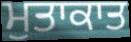
ਮੁਤਾਕਾਤ